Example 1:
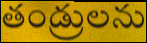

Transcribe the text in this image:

తండ్రులను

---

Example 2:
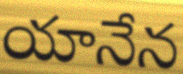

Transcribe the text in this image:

యానేన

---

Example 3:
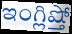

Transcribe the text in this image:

ఇంగ్లిష్తో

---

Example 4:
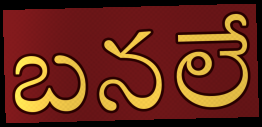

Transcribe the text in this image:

బనలే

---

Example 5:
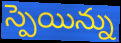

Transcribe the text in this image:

స్పెయిన్ను